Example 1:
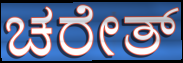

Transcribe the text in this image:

ಚರೇತ್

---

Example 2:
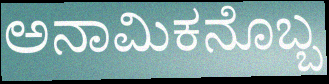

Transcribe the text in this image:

ಅನಾಮಿಕನೊಬ್ಬ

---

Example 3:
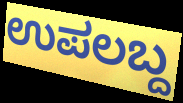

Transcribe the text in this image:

ಉಪಲಬ್ದ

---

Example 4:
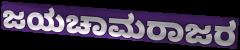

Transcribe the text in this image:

ಜಯಚಾಮರಾಜರ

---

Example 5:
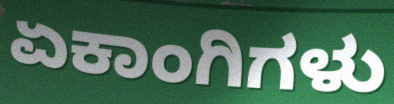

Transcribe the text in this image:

ಏಕಾಂಗಿಗಳು